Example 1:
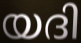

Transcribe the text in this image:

യദി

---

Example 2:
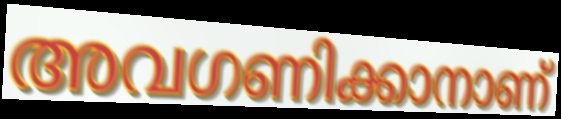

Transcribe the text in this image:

അവഗണിക്കാനാണ്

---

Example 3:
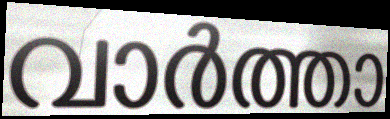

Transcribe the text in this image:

വാർത്താ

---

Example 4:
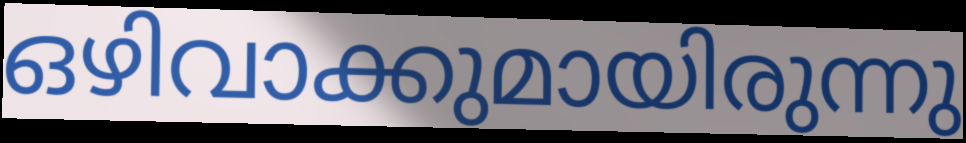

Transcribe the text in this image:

ഒഴിവാക്കുമായിരുന്നു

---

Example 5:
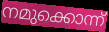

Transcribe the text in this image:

നമുക്കൊന്ന്